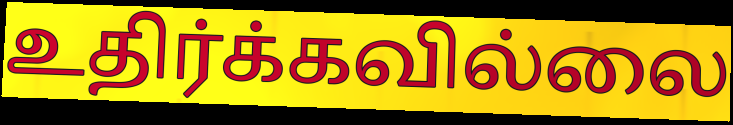
உதிர்க்கவில்லை